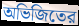
অভিজিতের